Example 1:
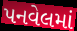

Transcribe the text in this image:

પનવેલમાં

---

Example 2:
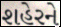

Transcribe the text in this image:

શહેરને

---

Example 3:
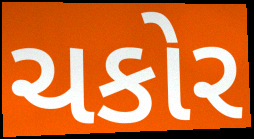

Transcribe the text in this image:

ચકોર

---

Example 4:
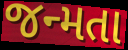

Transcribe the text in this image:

જન્મતા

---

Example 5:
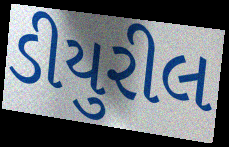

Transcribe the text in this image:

ડીયુરીલ